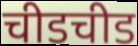
चीडचीड